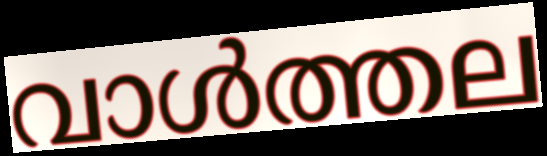
വാൾത്തല